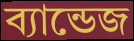
ব্যান্ডেজ